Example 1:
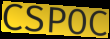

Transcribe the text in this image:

CSPOC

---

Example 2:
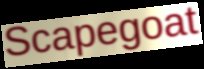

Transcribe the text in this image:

Scapegoat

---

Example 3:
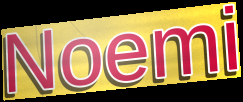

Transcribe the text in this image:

Noemi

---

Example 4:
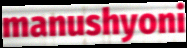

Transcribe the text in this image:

manushyoni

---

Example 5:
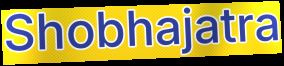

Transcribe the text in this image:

Shobhajatra